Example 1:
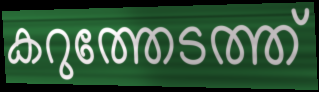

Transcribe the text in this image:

കറുത്തേടത്ത്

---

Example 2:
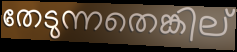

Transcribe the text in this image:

തേടുന്നതെങ്കില്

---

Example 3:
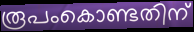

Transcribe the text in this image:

രൂപംകൊണ്ടതിന്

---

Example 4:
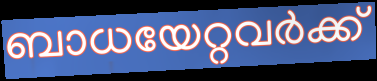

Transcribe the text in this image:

ബാധയേറ്റവർക്ക്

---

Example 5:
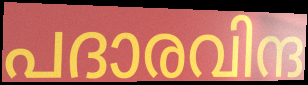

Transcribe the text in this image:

പദാരവിന്ദ